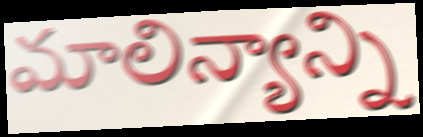
మాలిన్యాన్ని